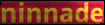
ninnade